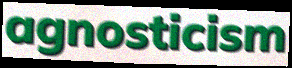
agnosticism